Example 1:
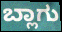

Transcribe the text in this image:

ಬ್ಲಾಗು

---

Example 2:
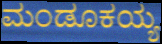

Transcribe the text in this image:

ಮಂಡೂಕಯ್ಯ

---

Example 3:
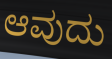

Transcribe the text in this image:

ಆವುದು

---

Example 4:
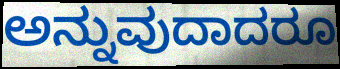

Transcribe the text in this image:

ಅನ್ನುವುದಾದರೂ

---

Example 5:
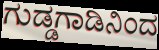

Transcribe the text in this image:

ಗುಡ್ಡಗಾಡಿನಿಂದ